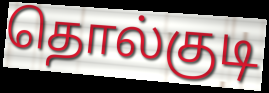
தொல்குடி